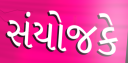
સંયોજકે